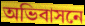
অভিবাসনে